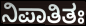
ನಿಪಾತಿತಃ